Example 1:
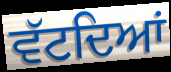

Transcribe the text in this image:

ਵੱਟਦਿਆਂ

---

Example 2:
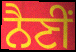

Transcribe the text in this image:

ਨੈਣੀਂ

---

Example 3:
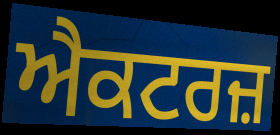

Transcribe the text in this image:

ਐਕਟਰਜ਼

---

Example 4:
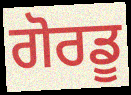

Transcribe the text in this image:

ਗੋਰਡੂ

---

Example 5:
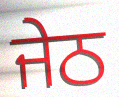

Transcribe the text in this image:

ਜੇਠ